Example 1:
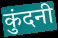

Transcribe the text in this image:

कुंदनी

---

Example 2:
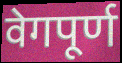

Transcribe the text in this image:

वेगपूर्ण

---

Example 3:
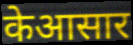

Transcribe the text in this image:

केआसार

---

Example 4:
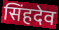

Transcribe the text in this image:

सिंहदेव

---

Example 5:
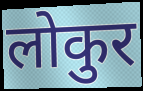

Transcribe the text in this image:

लोकुर